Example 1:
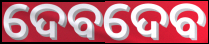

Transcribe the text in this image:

ଦେବଦେବ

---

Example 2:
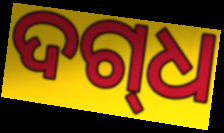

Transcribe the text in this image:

ଦଗ୍‍ଧ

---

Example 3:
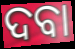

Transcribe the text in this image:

ଦବା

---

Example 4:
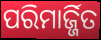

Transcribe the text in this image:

ପରିମାର୍ଜ୍ଜିତ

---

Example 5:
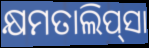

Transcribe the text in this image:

କ୍ଷମତାଲିପ୍‍ସା